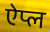
ऐप्ल